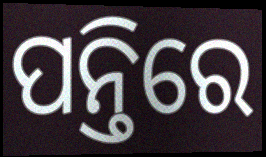
ପନ୍ତିରେ